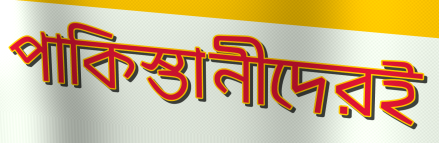
পাকিস্তানীদেরই